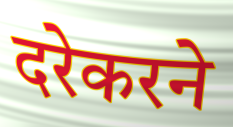
दरेकरने